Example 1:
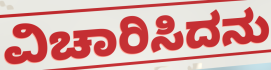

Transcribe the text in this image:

ವಿಚಾರಿಸಿದನು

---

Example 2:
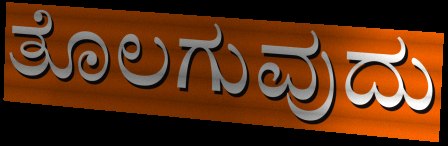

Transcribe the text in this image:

ತೊಲಗುವುದು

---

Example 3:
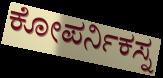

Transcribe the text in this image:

ಕೋಪರ್ನಿಕಸ್ನ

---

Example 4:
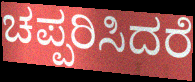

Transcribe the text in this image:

ಚಪ್ಪರಿಸಿದರೆ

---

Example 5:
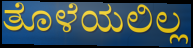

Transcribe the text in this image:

ತೊಳೆಯಲಿಲ್ಲ